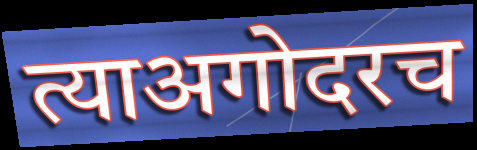
त्याअगोदरच